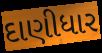
દાણીધાર